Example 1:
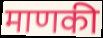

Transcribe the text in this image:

माणकी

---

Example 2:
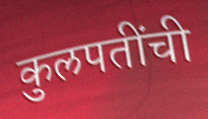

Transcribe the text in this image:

कुलपतींची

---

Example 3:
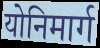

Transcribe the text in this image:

योनिमार्ग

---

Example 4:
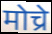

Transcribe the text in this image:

मोच्रे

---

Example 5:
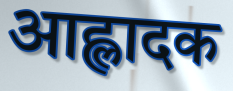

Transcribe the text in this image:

आह्लादक